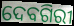
ଦେବଗିରୀ